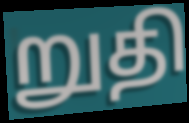
றுதி